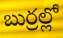
బుర్రల్లో